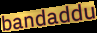
bandaddu